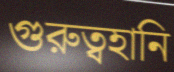
গুরুত্বহানি